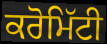
ਕਰੋਮਿੱਟੀ